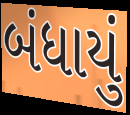
બંધાયું